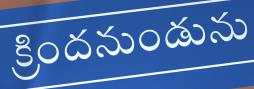
క్రిందనుండును